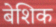
बेशिक